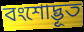
বংশোদ্ভূত